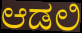
ಆಡಲಿ